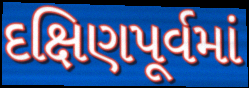
દક્ષિણપૂર્વમાં